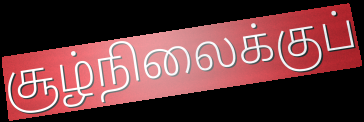
சூழ்நிலைக்குப்